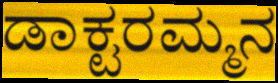
ಡಾಕ್ಟರಮ್ಮನ